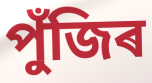
পুঁজিৰ